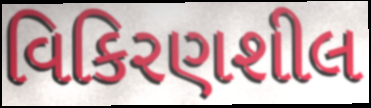
વિકિરણશીલ